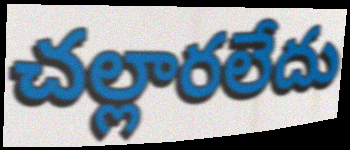
చల్లారలేదు